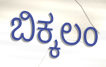
ಬಿಕ್ಕಲಂ